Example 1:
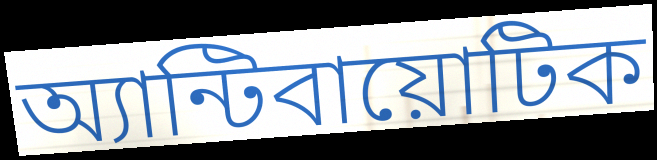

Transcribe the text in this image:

অ্যান্টিবায়োটিক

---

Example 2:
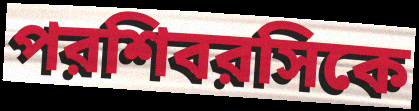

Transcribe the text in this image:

পরশিবরসিকে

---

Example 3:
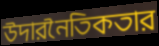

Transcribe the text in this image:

উদারনৈতিকতার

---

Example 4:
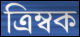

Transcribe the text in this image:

ত্রিম্বক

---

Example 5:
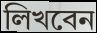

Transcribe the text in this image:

লিখবেন